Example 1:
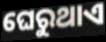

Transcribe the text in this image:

ଘେରୁଥାଏ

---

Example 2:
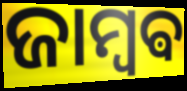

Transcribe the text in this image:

ଜାମ୍ବଵ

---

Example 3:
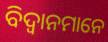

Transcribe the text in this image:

ବିଦ୍ଵାନମାନେ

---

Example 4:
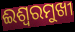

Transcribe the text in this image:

ଈଶ୍ୱରମୁଖୀ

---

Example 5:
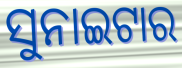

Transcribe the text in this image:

ସୁନାଇଟାର